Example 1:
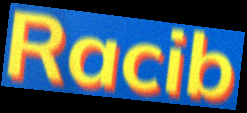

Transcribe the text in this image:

Racib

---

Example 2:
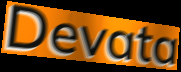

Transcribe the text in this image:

Devata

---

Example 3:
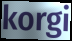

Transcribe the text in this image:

korgi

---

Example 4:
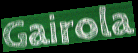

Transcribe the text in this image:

Gairola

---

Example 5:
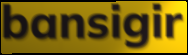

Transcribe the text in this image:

bansigir